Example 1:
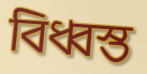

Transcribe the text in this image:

বিধ্বস্ত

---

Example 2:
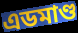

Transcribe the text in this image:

এডমাণ্ড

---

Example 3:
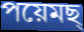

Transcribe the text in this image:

পয়েমছ্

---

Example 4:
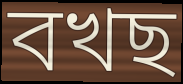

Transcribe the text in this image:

বখছ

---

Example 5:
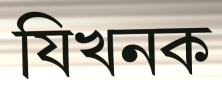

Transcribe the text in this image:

যিখনক